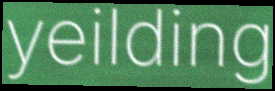
yeilding